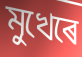
মুখেৰে